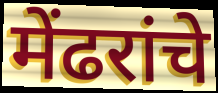
मेंढरांचे